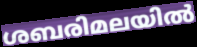
ശബരിമലയിൽ